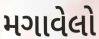
મગાવેલો